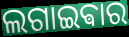
ଲଗାଇଵାର